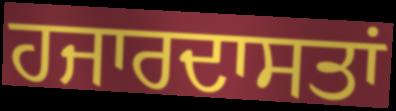
ਹਜਾਰਦਾਸਤਾਂ